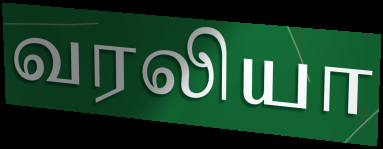
வரலியா